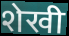
शेखी